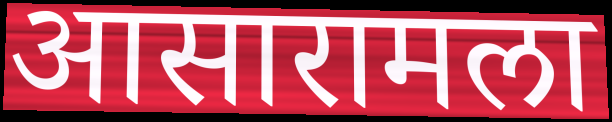
आसारामला